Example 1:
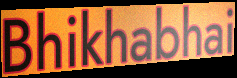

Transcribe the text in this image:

Bhikhabhai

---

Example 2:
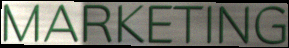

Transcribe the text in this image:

MARKETING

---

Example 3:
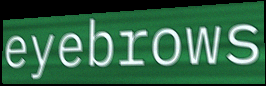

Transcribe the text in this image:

eyebrows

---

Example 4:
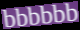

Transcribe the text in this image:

bbbbbb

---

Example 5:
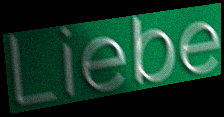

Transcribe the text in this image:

Liebe